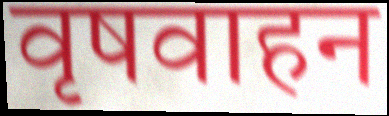
वृषवाहन